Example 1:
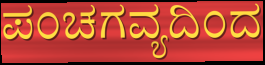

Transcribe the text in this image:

ಪಂಚಗವ್ಯದಿಂದ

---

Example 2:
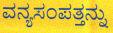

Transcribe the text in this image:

ವನ್ಯಸಂಪತ್ತನ್ನು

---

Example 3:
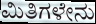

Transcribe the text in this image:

ಮಿತಿಗಳೇನು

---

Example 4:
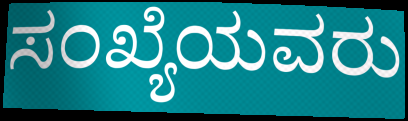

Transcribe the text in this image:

ಸಂಖ್ಯೆಯವರು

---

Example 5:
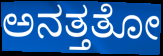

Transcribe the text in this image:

ಅನತ್ತತೋ